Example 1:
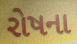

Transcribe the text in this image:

રોષના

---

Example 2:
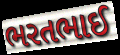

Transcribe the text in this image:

ભરતભાઈ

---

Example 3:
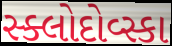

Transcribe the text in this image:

સ્ક્લોદોવ્સ્કા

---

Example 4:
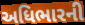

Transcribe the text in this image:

અધિભારની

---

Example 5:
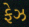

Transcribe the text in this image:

ફેઝ